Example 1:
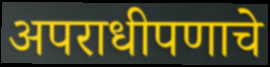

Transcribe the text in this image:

अपराधीपणाचे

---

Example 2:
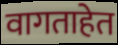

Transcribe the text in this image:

वागताहेत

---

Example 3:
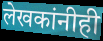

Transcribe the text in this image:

लेखकांनीही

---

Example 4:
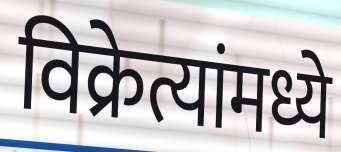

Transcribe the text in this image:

विक्रेत्यांमध्ये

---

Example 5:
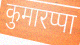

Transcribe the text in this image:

कुमारप्पा